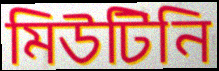
মিউটিনি